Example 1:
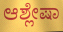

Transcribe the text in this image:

ಆಶ್ಲೇಷಾ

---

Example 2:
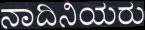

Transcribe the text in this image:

ನಾದಿನಿಯರು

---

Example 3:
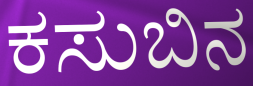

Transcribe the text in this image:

ಕಸುಬಿನ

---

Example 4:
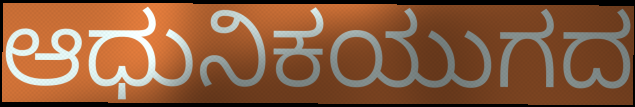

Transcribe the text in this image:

ಆಧುನಿಕಯುಗದ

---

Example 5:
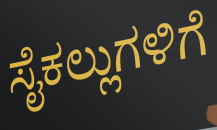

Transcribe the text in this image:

ಸೈಕಲ್ಲುಗಳಿಗೆ